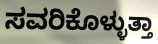
ಸವರಿಕೊಳ್ಳುತ್ತಾ